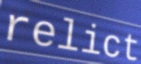
relict